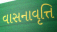
વાસનાવૃત્તિ